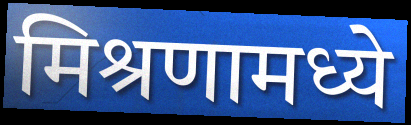
मिश्रणामध्ये